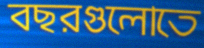
বছরগুলোতে